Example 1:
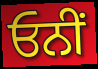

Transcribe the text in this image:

ਓਨੀਂ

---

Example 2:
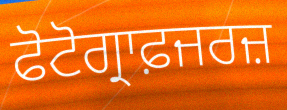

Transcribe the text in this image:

ਫੋਟੋਗ੍ਰਾਫ਼ਜਰਜ਼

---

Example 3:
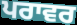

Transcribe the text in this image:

ਪਰਾਵਰ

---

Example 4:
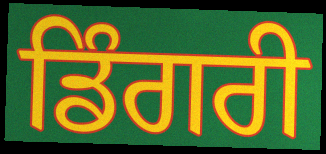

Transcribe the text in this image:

ਡਿੰਗਰੀ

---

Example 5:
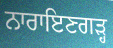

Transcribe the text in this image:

ਨਾਰਾਇਣਗੜ੍ਹ